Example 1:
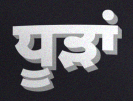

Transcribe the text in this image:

ਧੂੜਾਂ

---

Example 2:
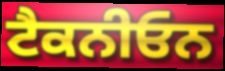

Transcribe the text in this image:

ਟੈਕਨੀਓਨ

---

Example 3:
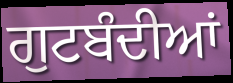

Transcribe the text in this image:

ਗੁਟਬੰਦੀਆਂ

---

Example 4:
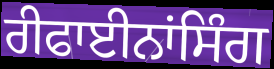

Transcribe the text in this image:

ਰੀਫਾਈਨਾਂਸਿੰਗ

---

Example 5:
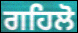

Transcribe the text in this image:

ਗਹਿਲੋ